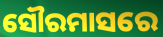
ସୌରମାସରେ